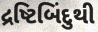
દ્રષ્ટિબિંદુથી